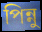
পিন্নু